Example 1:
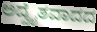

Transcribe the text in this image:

ಅದ್ವೈತವಾದದ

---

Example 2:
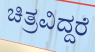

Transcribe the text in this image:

ಚಿತ್ರವಿದ್ದರೆ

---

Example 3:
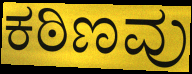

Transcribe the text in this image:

ಕಠಿಣವು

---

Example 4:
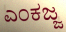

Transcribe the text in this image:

ಎಂಕಜ್ಜ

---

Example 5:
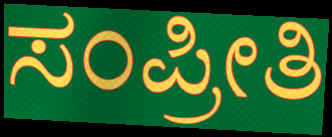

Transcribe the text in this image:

ಸಂಪ್ರೀತಿ